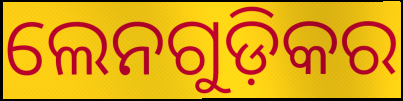
ଲେନଗୁଡ଼ିକର